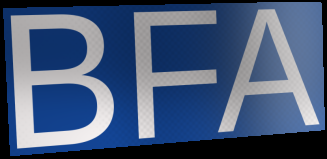
BFA